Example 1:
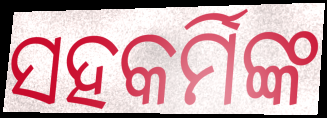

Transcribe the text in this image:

ସହକର୍ମିଙ୍କ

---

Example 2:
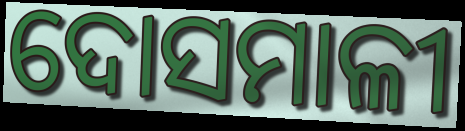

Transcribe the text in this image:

ଦୋସମାଳୀ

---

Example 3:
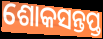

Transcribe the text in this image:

ଶୋକସନ୍ତପ୍ତ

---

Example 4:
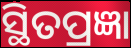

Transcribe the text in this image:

ସ୍ଥିତପ୍ରଜ୍ଞା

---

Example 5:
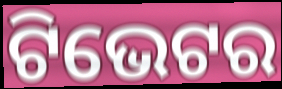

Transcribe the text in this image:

ଟିଭେଟର